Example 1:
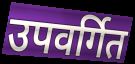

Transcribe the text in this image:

उपवर्गित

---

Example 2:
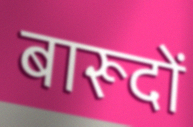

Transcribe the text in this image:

बारूदों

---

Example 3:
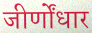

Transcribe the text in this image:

जीर्णोंधार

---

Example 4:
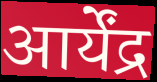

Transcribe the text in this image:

आर्येंद्र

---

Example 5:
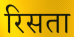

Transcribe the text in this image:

रिसता